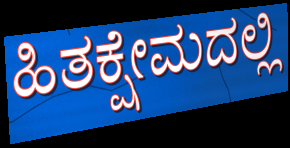
ಹಿತಕ್ಷೇಮದಲ್ಲಿ